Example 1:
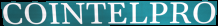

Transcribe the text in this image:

COINTELPRO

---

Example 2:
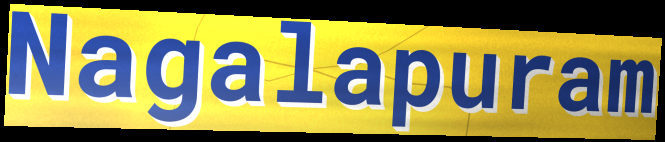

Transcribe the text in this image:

Nagalapuram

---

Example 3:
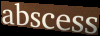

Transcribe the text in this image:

abscess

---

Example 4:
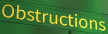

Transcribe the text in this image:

Obstructions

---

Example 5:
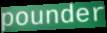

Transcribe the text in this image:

pounder